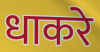
धाकरे